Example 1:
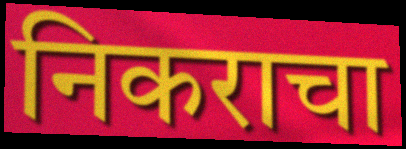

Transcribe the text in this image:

निकराचा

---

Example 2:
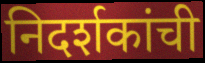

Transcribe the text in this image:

निदर्शकांची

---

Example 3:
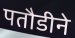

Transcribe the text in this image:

पतौडीने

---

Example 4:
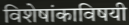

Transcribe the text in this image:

विशेषांकाविषयी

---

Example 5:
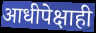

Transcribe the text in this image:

आधीपेक्षाही